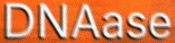
DNAase